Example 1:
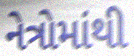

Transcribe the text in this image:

નેત્રોમાંથી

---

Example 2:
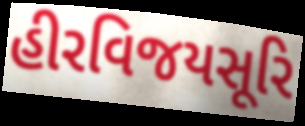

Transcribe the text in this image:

હીરવિજયસૂરિ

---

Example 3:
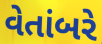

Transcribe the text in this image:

વેતાંબરે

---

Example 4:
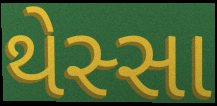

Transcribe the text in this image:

થેસ્સા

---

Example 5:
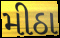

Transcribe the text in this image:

મીઠા